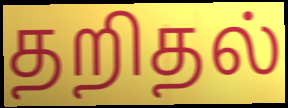
தறிதல்